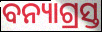
ବନ୍ୟାଗ୍ରସ୍ତ